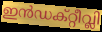
ഇൻഡക്റ്റീവ്ലി